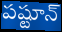
పష్టూన్